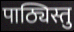
पाठ्यिस्तु